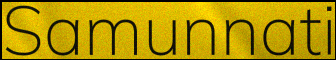
Samunnati